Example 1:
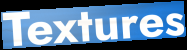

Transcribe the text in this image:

Textures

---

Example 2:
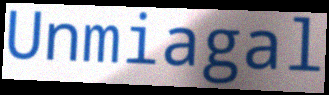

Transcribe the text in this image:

Unmiagal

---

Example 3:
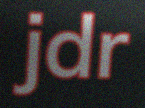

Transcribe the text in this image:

jdr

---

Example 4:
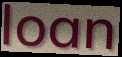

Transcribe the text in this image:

Ioan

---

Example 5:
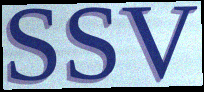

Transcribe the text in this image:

SSV